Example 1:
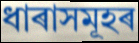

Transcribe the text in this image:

ধাৰাসমূহৰ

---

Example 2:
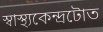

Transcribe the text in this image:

স্বাস্থ্যকেন্দ্ৰটোত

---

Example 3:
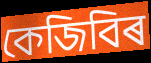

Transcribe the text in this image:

কেজিবিৰ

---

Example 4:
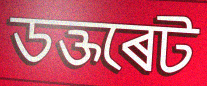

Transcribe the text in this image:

ডক্তৰেট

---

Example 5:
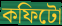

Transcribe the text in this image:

কফিটো